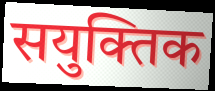
सयुक्तिक